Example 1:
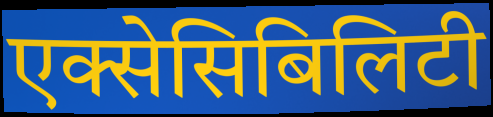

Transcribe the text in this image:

एक्सेसिबिलिटी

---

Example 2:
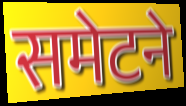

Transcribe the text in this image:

समेटने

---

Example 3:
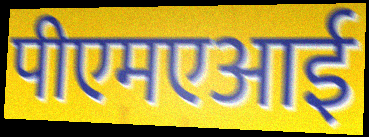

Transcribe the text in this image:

पीएमएआई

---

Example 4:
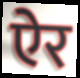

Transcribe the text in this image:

ऐर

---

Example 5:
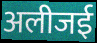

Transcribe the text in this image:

अलीजई